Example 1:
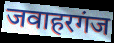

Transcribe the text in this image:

जवाहरगंज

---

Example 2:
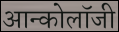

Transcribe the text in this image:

आन्कोलॉजी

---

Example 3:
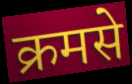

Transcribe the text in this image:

क्रमसे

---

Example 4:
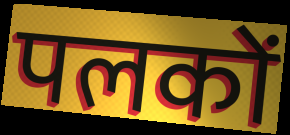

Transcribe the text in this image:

पलकों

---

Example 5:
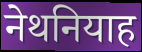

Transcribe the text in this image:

नेथनियाह